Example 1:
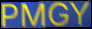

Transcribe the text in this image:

PMGY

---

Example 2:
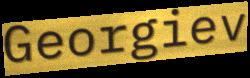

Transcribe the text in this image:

Georgiev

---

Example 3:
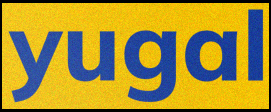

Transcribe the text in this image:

yugal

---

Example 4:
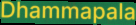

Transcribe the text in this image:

Dhammapala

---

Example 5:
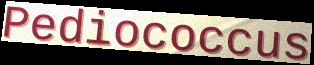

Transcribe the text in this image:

Pediococcus